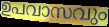
ഉപവാസവും